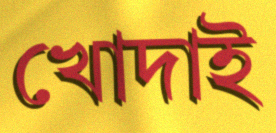
খোদাই